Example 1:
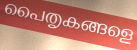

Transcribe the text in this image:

പൈതൃകങ്ങളെ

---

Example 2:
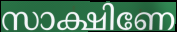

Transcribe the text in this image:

സാക്ഷിണേ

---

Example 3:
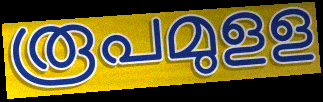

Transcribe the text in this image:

രൂപമുളള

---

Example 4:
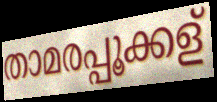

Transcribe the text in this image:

താമരപ്പൂക്കള്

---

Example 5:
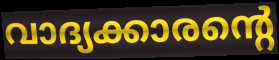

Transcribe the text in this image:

വാദ്യക്കാരന്റെ